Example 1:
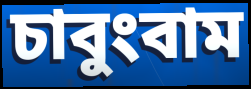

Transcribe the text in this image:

চাবুংবাম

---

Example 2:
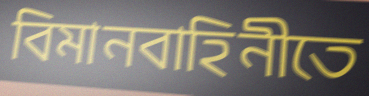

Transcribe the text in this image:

বিমানবাহিনীতে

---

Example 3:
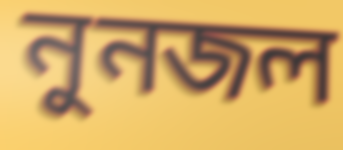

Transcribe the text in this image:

নুনজল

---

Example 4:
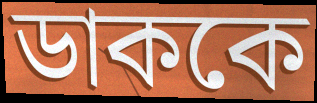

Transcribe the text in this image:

ডাককে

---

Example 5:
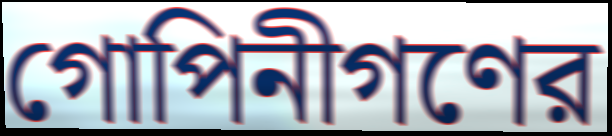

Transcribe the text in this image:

গোপিনীগণের